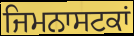
ਜਿਮਨਾਸਟਕਾਂ